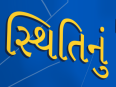
સ્થિતિનું